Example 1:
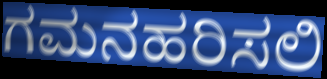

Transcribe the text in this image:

ಗಮನಹರಿಸಲಿ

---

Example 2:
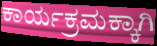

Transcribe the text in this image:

ಕಾರ್ಯಕ್ರಮಕ್ಕಾಗಿ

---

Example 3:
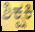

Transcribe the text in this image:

ಶಿಕ್ಷಕಿ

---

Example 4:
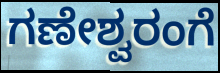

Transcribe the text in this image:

ಗಣೇಶ್ವರಂಗೆ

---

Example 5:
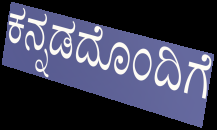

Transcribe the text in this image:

ಕನ್ನಡದೊಂದಿಗೆ